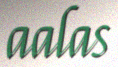
aalas